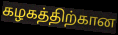
கழகத்திற்கான